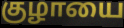
குழாயை